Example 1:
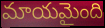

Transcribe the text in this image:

మాయమైంది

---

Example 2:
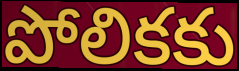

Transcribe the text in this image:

పోలికకు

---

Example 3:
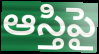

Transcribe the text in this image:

ఆస్తిపై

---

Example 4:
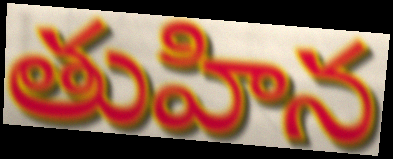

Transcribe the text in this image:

తుహిన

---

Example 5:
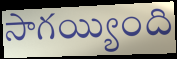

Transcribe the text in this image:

సాగయ్యింది